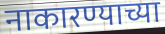
नाकारण्याच्या